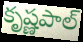
కృష్ణపాల్